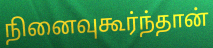
நினைவுகூர்ந்தான்